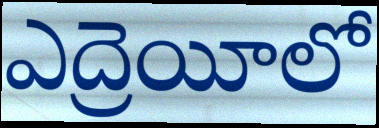
ఎద్రెయీలో